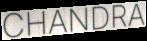
CHANDRA